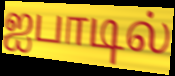
ஐபாடில்